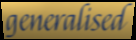
generalised